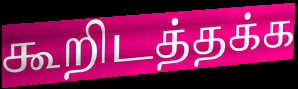
கூறிடத்தக்க